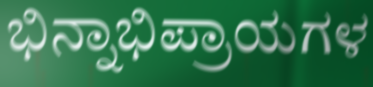
ಭಿನ್ನಾಭಿಪ್ರಾಯಗಳ